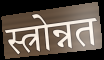
स्त्रोन्नत